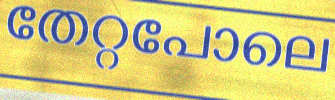
തേറ്റപോലെ